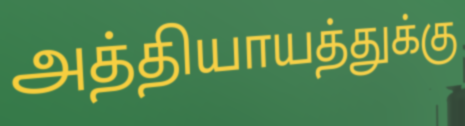
அத்தியாயத்துக்கு